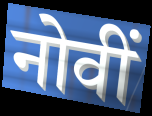
नोवीं